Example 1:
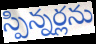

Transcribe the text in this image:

స్పిన్నర్లను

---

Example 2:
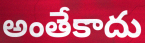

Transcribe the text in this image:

అంతేకాదు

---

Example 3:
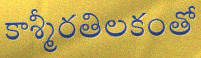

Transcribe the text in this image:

కాశ్మీరతిలకంతో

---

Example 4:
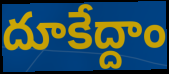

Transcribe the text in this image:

దూకేద్దాం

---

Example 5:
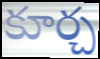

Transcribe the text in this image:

కూర్చ